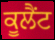
ਕੂਲੈਂਟ